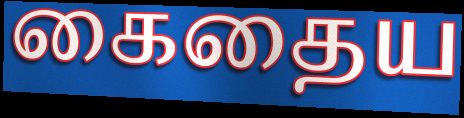
கைதைய